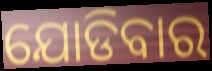
ଯୋଡିବାର